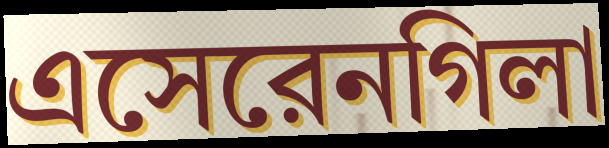
এসেরেনগিলা